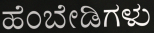
ಹೆಂಬೇಡಿಗಳು